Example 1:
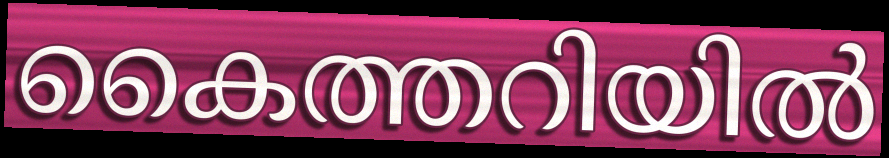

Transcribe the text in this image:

കൈത്തറിയിൽ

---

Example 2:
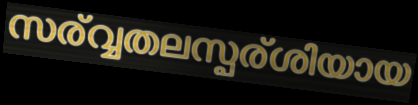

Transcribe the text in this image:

സര്വ്വതലസ്പര്ശിയായ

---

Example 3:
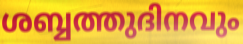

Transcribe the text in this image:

ശബ്ബത്തുദിനവും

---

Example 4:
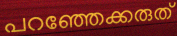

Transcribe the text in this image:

പറഞ്ഞേക്കരുത്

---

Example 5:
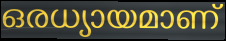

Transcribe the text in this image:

ഒരധ്യായമാണ്